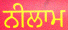
ਨੀਲਾਮ